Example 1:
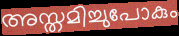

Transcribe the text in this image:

അസ്തമിച്ചുപോകും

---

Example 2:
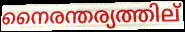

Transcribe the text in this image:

നൈരന്തര്യത്തില്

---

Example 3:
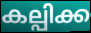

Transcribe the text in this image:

കല്പിക്ക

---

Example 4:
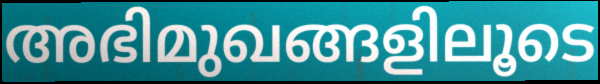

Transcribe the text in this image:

അഭിമുഖങ്ങളിലൂടെ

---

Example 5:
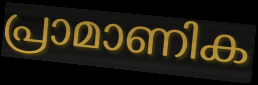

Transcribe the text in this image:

പ്രാമാണിക